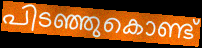
പിടഞ്ഞുകൊണ്ട്